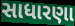
સાધારણા